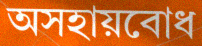
অসহায়বোধ